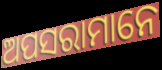
ଅପସରାମାନେ